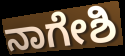
ನಾಗೇಶಿ